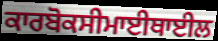
ਕਾਰਬੋਕਸੀਮਾਈਥਾਈਲ